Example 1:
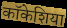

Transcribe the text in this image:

कॉकेशिया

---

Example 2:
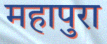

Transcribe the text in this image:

महापुरा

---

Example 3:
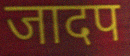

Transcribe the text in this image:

जादप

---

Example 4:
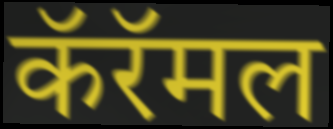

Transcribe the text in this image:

कॅरॅमल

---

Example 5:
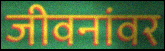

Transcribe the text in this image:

जीवनांवर